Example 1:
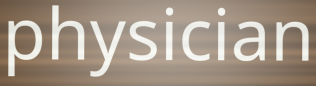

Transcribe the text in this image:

physician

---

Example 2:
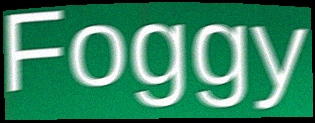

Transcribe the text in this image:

Foggy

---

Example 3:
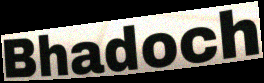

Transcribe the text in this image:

Bhadoch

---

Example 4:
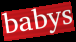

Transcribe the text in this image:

babys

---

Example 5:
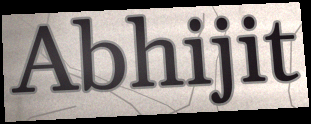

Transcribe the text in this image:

Abhijit